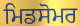
ਮਿਡਸੋਮਰ